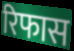
रिफास